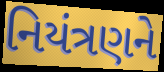
નિયંત્રણને